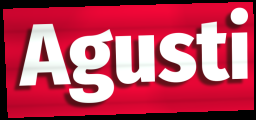
Agusti